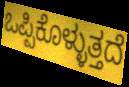
ಒಪ್ಪಿಕೊಳ್ಳುತ್ತದೆ